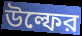
উল্ফের